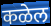
कळेल